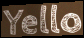
Yello